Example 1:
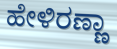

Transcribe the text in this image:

ಹೇಳಿರಣ್ಣಾ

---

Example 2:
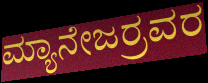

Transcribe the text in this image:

ಮ್ಯಾನೇಜರ್ರವರ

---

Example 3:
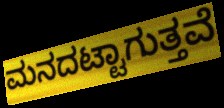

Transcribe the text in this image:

ಮನದಟ್ಟಾಗುತ್ತವೆ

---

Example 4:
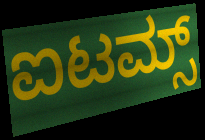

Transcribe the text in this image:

ಐಟಮ್ಸ್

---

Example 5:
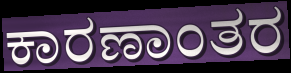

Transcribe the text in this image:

ಕಾರಣಾಂತರ